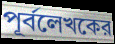
পূর্বলেখকের